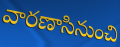
వారణాసినుంచి